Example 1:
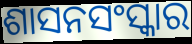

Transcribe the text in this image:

ଶାସନସଂସ୍କାର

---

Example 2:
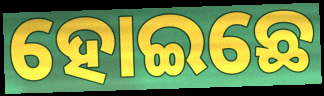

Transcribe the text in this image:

ହୋଇଛେ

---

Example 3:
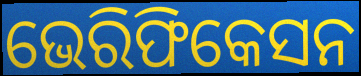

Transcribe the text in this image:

ଭେରିଫିକେସନ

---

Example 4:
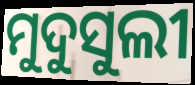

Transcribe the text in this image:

ମୁଦୁସୁଲୀ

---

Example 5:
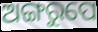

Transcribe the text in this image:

ଅଙ୍ଗରୁପେ